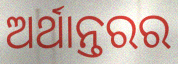
ଅର୍ଥାନ୍ତରର